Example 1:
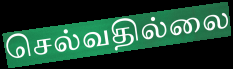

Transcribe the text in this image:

செல்வதில்லை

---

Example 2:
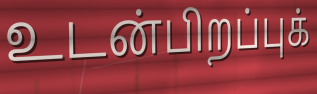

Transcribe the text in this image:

உடன்பிறப்புக்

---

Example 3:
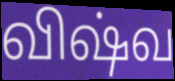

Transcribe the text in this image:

விஷ்வ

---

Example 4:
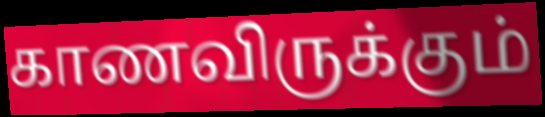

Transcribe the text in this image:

காணவிருக்கும்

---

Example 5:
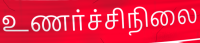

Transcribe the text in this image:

உணர்ச்சிநிலை